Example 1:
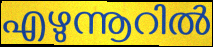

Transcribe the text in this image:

എഴുന്നൂറിൽ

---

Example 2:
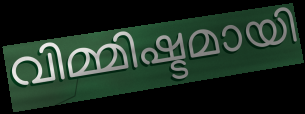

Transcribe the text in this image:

വിമ്മിഷ്ടമായി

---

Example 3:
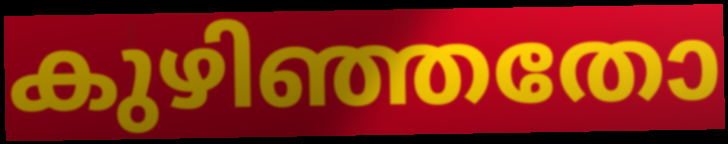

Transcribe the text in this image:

കുഴിഞ്ഞതോ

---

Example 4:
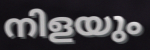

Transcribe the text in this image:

നിളയും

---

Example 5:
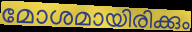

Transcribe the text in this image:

മോശമായിരിക്കും